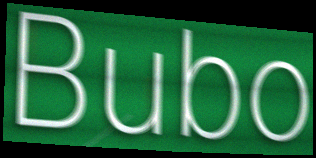
Bubo